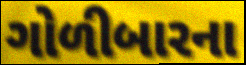
ગોળીબારના